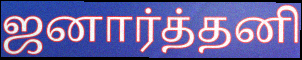
ஜனார்த்தனி